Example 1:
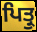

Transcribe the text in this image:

ਪਿਤ੍ਰੁ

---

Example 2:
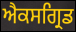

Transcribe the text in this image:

ਐਕਸਗ੍ਰਿਡ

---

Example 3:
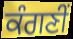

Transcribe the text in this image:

ਕੰਗਣੀਂ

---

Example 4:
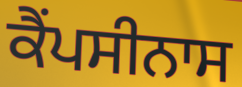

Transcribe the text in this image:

ਕੈਂਪਸੀਨਾਸ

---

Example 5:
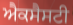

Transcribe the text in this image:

ਐਕਸੈਸਟੀ